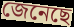
জেনেছে